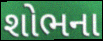
શોભના